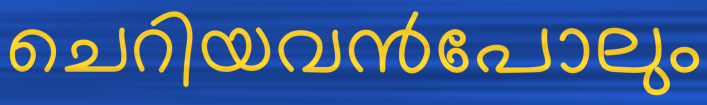
ചെറിയവൻപോലും